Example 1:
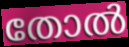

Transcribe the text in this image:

തോൽ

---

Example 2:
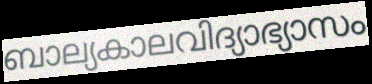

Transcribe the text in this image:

ബാല്യകാലവിദ്യാഭ്യാസം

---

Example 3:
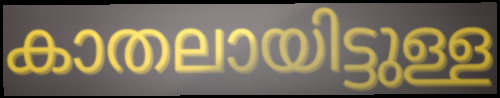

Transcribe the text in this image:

കാതലായിട്ടുള്ള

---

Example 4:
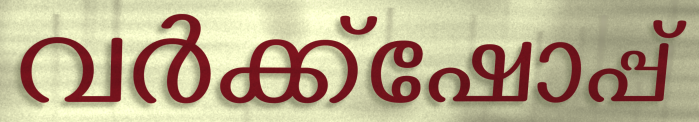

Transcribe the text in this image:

വർക്ക്ഷോപ്പ്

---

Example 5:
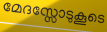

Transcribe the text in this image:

മേദസ്സോടുകൂടെ